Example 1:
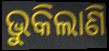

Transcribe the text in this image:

ଭୁକିଲାଣି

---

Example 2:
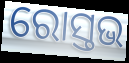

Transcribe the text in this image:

ରୋସ୍ତଭ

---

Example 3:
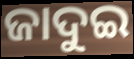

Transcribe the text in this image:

ଜାଦୁଇ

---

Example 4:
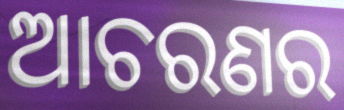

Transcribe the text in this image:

ଆଚରଣର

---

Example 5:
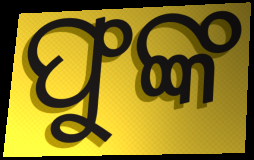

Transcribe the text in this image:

ଫୁଙ୍କ